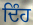
ਦਿੰਹ